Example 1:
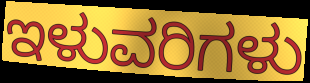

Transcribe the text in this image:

ಇಳುವರಿಗಳು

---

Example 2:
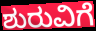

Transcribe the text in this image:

ಶುರುವಿಗೆ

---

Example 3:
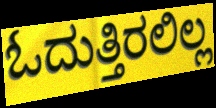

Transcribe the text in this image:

ಓದುತ್ತಿರಲಿಲ್ಲ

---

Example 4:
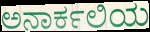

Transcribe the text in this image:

ಅನಾರ್ಕಲಿಯ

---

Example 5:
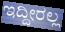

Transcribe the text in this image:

ಇದ್ದೀರಲ್ಲ